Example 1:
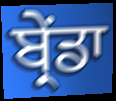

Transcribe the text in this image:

ਬ੍ਰੇਂਡਾ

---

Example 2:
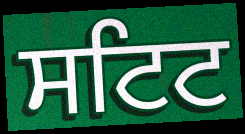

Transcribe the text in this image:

ਸਟਿਟ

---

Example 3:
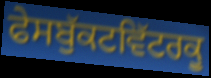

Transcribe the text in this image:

ਫੇਸਬੁੱਕਟਵਿੱਟਰਕੂ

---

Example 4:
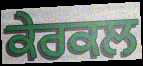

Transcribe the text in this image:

ਕੇਰਕਲ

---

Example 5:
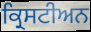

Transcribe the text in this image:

ਕ੍ਰਿਸਟੀਅਨ